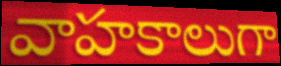
వాహకాలుగా